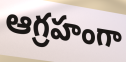
ఆగ్రహంగా